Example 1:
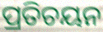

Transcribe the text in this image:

ପ୍ରତିଚୟନ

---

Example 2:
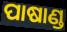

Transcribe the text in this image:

ପାଷାଣ୍ଡ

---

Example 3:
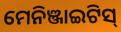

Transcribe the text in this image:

ମେନିଞ୍ଜାଇଟିସ୍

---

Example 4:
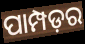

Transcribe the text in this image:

ପାମ୍ପଡ଼ର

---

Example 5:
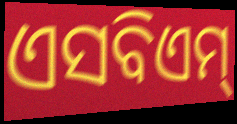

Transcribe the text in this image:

ଏସବିଏମ୍